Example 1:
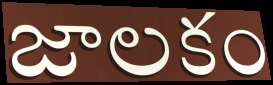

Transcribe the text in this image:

జాలకం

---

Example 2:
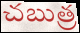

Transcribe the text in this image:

చబుత్ర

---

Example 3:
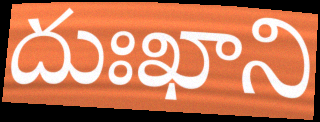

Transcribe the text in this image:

దుఃఖాని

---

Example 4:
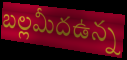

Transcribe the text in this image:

బల్లమీదఉన్న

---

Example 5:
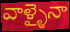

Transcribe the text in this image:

వాళ్ళైనా